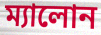
ম্যালোন